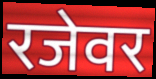
रजेवर